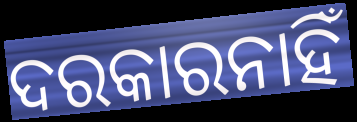
ଦରକାରନାହିଁ